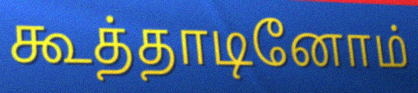
கூத்தாடினோம்